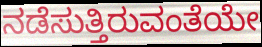
ನಡೆಸುತ್ತಿರುವಂತೆಯೇ